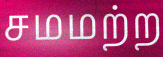
சமமற்ற